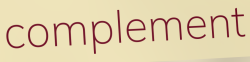
complement